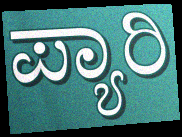
ಪ್ಯಾರಿ